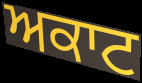
ਅਕਾਟ